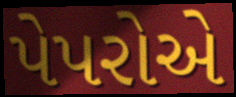
પેપરોએ